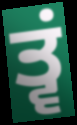
ਤ੍ਵਂ